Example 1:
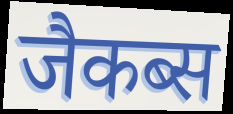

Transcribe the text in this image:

जैकब्स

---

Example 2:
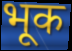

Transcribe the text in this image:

भूक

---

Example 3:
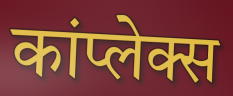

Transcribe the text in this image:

कांप्लेक्स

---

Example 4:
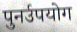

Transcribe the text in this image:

पुनर्उपयोग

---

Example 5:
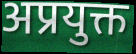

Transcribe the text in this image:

अप्रयुक्त